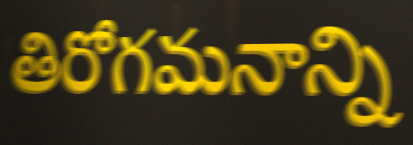
తిరోగమనాన్ని